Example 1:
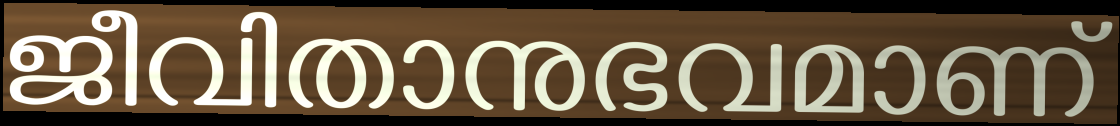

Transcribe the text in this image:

ജീവിതാനുഭവമാണ്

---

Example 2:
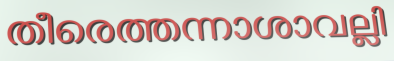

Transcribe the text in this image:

തീരെത്തന്നാശാവല്ലി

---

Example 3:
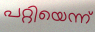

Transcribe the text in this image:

പറ്റിയെന്ന്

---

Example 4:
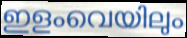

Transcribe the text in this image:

ഇളംവെയിലും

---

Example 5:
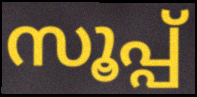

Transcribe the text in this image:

സൂപ്പ്